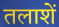
तलाशें